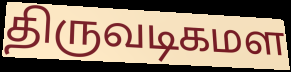
திருவடிகமள